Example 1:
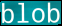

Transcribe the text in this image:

blob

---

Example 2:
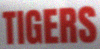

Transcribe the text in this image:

TIGERS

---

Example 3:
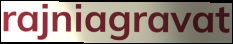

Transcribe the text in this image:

rajniagravat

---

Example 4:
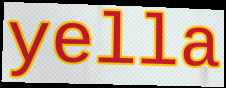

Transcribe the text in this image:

yella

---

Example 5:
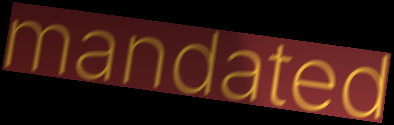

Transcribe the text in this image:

mandated